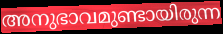
അനുഭാവമുണ്ടായിരുന്ന